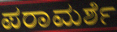
ಪರಾಮರ್ಶೆ